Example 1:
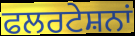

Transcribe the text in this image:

ਫਲਰਟੇਸ਼ਨਾਂ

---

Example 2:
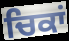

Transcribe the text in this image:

ਚਿਕਾਂ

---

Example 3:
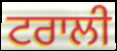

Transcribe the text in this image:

ਟਰਾਲੀ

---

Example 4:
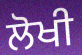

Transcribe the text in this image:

ਲੋਖੀ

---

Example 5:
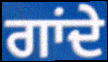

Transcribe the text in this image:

ਗਾਂਦੇ